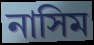
নাসিম